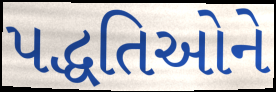
પદ્ધતિઓને